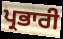
ਪ੍ਰਭਾਰੀ